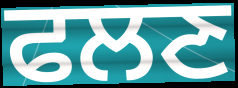
ਫਲਣ